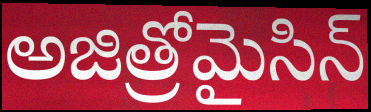
అజిత్రోమైసిన్